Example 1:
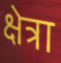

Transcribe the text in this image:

क्षेत्रा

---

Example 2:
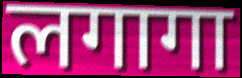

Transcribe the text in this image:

लगागा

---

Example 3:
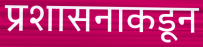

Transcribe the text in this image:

प्रशासनाकडून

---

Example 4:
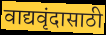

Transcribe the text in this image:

वाद्यवृंदासाठी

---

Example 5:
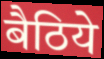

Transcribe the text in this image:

बैठिये